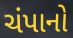
ચંપાનો